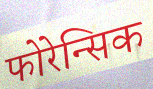
फोरेन्सिक